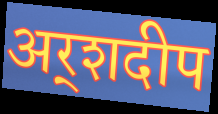
अर्शदीप